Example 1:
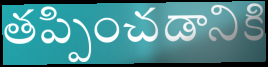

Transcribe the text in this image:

తప్పించడానికి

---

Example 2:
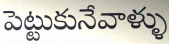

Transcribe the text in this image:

పెట్టుకునేవాళ్ళు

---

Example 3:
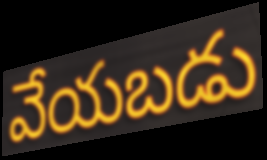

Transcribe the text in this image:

వేయబడు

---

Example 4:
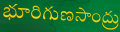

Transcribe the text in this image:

భూరిగుణసాంద్రు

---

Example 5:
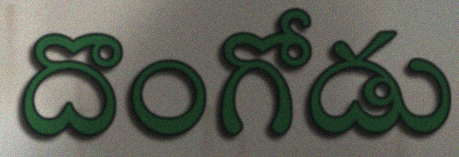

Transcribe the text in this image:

దొంగోడు